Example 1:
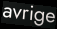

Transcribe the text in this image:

avrige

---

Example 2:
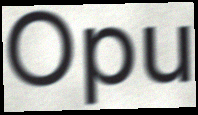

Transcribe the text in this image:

Opu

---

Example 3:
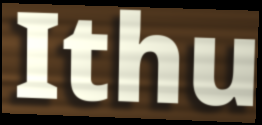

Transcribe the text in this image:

Ithu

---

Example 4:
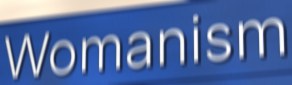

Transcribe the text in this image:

Womanism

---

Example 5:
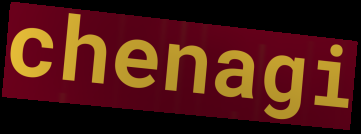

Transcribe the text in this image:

chenagi